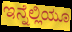
ಇನ್ನೆಲ್ಲಿಯೂ